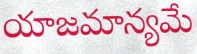
యాజమాన్యమే